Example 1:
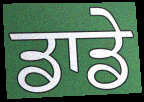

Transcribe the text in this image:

ਡਾਡੇ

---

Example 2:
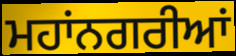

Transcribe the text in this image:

ਮਹਾਂਨਗਰੀਆਂ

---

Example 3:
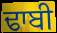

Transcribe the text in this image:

ਢਾਬੀ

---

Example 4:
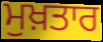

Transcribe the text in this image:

ਮੁਖ਼ਤਾਰ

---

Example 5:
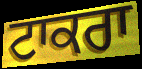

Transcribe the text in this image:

ਟਾਕਰਾ